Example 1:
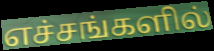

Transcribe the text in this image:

எச்சங்களில்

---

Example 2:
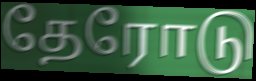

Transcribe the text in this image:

தேரோடு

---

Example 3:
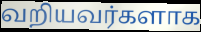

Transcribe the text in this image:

வறியவர்களாக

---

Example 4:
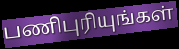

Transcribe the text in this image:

பணிபுரியுங்கள்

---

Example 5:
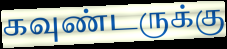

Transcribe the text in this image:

கவுண்டருக்கு